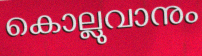
കൊല്ലുവാനും